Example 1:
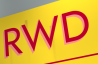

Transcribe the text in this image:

RWD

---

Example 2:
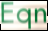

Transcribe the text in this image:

Eqn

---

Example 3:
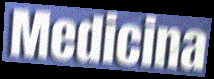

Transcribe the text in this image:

Medicina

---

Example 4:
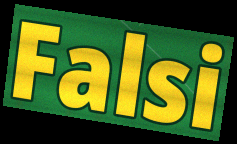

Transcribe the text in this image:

Falsi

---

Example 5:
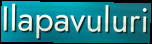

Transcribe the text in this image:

Ilapavuluri